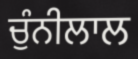
ਚੁੰਨੀਲਾਲ